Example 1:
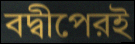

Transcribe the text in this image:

বদ্বীপেরই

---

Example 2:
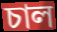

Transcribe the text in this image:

চাল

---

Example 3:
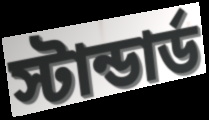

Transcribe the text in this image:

স্টান্ডার্ড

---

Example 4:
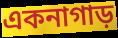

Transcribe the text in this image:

একনাগাড়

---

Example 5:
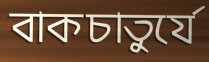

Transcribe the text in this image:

বাকচাতুর্যে